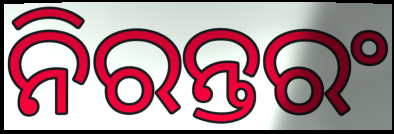
ନିରନ୍ତରଂ